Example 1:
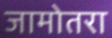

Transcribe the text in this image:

जामोतरा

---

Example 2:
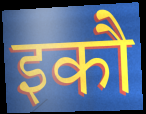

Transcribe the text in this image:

इकौ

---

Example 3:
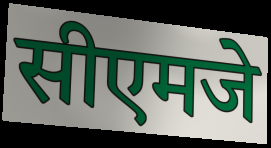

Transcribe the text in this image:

सीएमजे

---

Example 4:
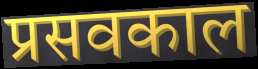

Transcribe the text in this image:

प्रसवकाल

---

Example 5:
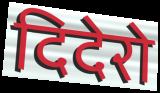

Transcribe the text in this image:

दिदेरो